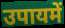
उपायमें